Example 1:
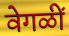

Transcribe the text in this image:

वेगळीं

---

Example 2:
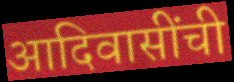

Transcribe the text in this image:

आदिवासींची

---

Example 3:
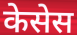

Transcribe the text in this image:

केसेस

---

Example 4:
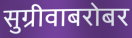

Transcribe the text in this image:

सुग्रीवाबरोबर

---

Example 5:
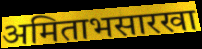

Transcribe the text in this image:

अमिताभसारखा